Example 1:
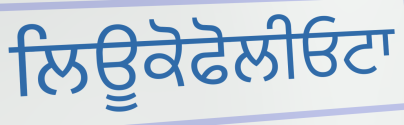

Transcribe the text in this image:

ਲਿਊਕੋਫੋਲੀਓਟਾ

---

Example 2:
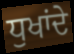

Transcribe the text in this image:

ਧੁਖਾਂਦੇ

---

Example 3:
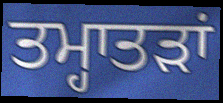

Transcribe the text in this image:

ਤਮ੍ਹਾਤੜਾਂ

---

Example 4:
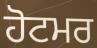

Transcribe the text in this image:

ਹੋਟਮਰ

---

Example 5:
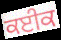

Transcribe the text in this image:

ਕਈਕ